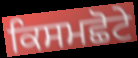
ਕਿਸਮਛੋਟੇ